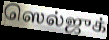
ஸெல்ஜுக்